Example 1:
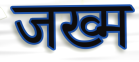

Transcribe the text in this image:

जख्म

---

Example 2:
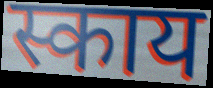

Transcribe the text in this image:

स्काय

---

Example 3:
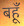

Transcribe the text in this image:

बहूँ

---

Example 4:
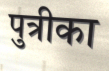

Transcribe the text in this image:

पुत्रीका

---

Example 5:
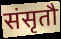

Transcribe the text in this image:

संसृतौ